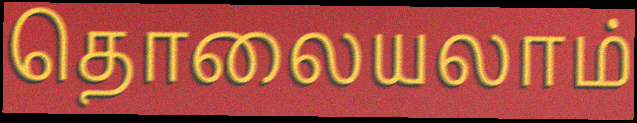
தொலையலாம்